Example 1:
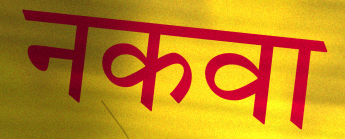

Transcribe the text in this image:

नकवा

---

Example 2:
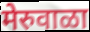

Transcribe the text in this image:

मेरुवाळा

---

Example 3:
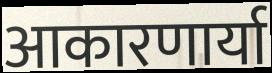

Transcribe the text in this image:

आकारणार्या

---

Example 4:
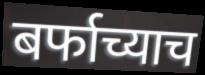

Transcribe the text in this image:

बर्फाच्याच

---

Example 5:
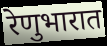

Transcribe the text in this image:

रेणुभारात